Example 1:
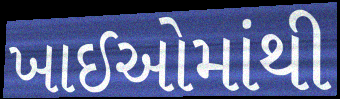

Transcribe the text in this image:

ખાઈઓમાંથી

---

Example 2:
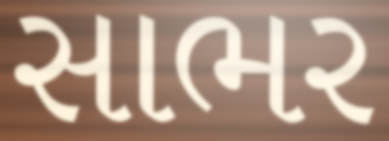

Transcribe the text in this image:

સાભર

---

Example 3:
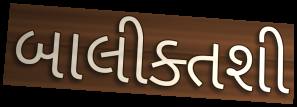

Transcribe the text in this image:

બાલીક્તશી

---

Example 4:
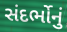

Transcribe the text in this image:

સંદર્ભોનું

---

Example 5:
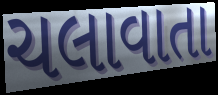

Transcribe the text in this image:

ચલાવાતા